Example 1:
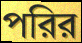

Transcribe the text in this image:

পরির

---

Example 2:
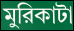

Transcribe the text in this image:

মুরিকাটা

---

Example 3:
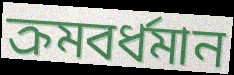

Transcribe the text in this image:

ক্রমবর্ধমান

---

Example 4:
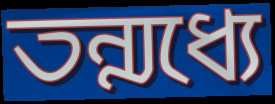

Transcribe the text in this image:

তন্মধ্যে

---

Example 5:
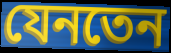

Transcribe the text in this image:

যেনতেন